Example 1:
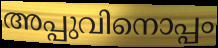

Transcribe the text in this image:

അപ്പുവിനൊപ്പം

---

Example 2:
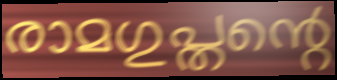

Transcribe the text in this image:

രാമഗുപ്തന്റെ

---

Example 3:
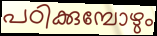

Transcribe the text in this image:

പഠിക്കുമ്പോഴും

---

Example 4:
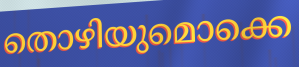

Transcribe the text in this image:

തൊഴിയുമൊക്കെ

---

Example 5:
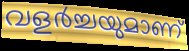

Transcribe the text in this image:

വളർച്ചയുമാണ്